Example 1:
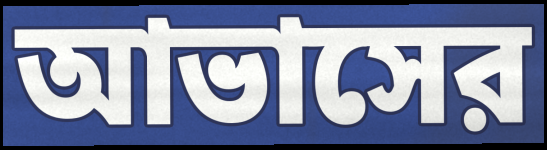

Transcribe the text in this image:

আভাসের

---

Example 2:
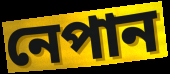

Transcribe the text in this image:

নেপান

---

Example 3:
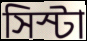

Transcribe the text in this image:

সিস্টা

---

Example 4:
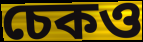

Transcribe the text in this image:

চেকও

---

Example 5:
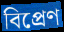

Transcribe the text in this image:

বিপ্রেণ